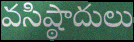
వసిష్ఠాదులు